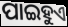
ପାଇହୁଏ